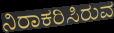
ನಿರಾಕರಿಸಿರುವ